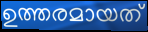
ഉത്തരമായത്